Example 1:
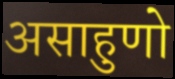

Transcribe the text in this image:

असाहुणो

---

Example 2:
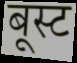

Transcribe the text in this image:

बूस्ट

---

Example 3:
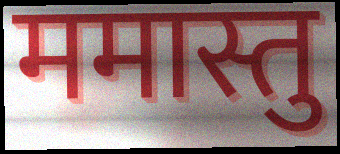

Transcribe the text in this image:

ममास्तु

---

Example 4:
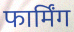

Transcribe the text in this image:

फार्मिंग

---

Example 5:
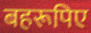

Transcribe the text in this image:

बहरूपिए